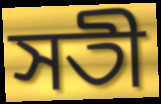
সতী